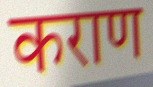
कराण